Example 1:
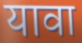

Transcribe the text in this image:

यावा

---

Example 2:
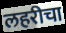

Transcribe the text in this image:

लहरीचा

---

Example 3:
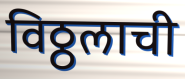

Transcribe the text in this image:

विठ्ठलाची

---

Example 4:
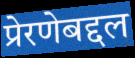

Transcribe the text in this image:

प्रेरणेबद्दल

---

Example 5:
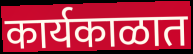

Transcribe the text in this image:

कार्यकाळात